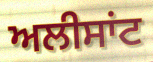
ਅਲੀਸਾਂਟ